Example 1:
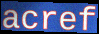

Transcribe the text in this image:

acref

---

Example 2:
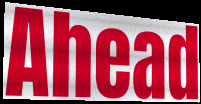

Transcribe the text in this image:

Ahead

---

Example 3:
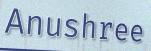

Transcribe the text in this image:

Anushree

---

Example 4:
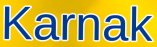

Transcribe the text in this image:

Karnak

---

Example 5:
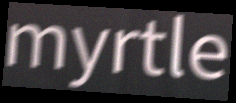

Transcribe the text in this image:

myrtle